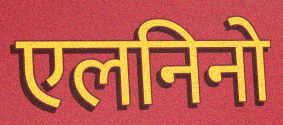
एलनिनो